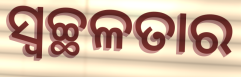
ସ୍ଵଚ୍ଛଳତାର